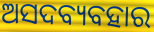
ଅସଦବ୍ୟବହାର